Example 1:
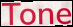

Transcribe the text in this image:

Tone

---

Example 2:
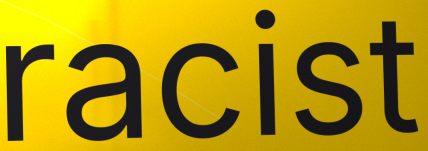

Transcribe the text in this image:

racist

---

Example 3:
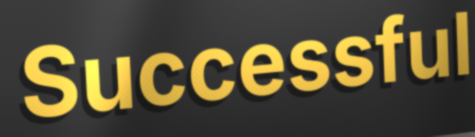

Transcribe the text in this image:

Successful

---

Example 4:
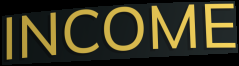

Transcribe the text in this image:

INCOME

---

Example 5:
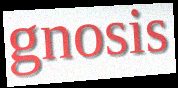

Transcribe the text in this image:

gnosis